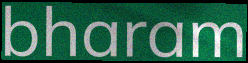
bharam